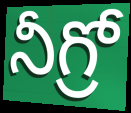
నీగ్రో